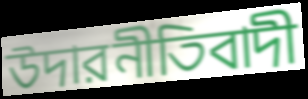
উদারনীতিবাদী